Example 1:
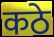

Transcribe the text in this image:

कठे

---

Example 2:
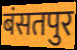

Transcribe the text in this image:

बंसतपुर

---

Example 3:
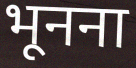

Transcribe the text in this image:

भूनना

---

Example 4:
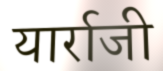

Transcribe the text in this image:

यार्राजी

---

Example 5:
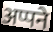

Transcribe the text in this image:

अप्पने